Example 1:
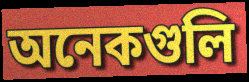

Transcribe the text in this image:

অনেকগুলি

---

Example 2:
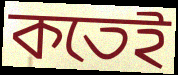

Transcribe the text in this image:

কতেই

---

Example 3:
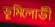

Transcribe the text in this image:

ভূমিলোভী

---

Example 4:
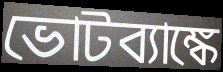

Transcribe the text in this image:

ভোটব্যাঙ্কে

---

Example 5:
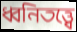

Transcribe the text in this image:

ধ্বনিতত্ত্বে